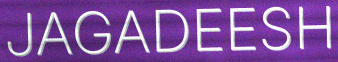
JAGADEESH